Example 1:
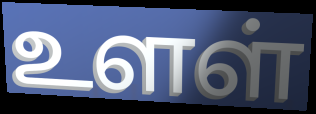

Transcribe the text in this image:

உளள்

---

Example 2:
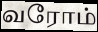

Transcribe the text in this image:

வரோம்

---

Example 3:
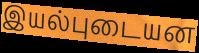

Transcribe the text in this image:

இயல்புடையன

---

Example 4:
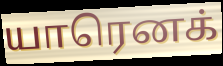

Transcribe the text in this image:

யாரெனக்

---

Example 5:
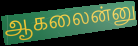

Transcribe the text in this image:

ஆகலைன்னு